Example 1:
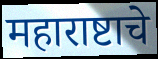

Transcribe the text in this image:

महाराष्टाचे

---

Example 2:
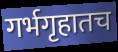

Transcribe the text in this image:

गर्भगृहातच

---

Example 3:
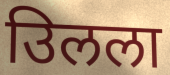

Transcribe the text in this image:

उिलला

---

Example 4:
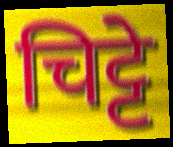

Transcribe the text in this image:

चिट्टे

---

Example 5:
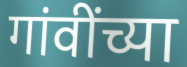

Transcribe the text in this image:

गांवींच्या